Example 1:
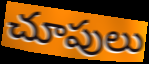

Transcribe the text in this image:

చూపులు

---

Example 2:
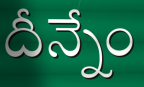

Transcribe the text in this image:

దీన్నేం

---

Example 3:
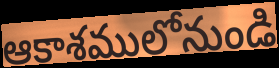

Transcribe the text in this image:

ఆకాశములోనుండి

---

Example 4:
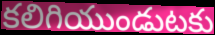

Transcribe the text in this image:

కలిగియుండుటకు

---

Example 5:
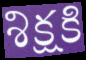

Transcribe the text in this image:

శిక్షకి